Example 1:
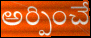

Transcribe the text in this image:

అర్పించే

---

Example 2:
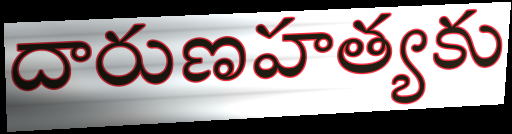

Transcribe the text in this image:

దారుణహత్యకు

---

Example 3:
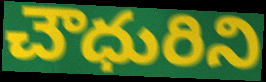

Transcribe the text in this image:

చౌధురిని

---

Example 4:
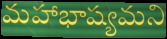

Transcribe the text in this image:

మహాభాష్యమని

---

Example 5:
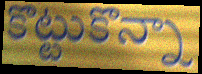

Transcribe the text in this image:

కొట్టుకొన్నా